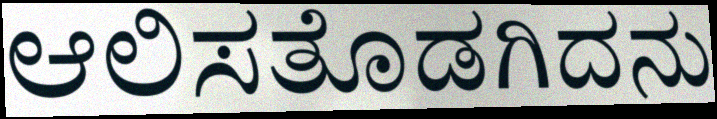
ಆಲಿಸತೊಡಗಿದನು